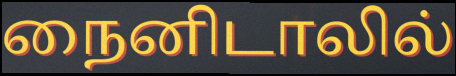
நைனிடாலில்